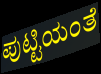
ಪುಟ್ಟಿಯಂತೆ